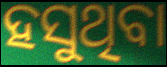
ହସୁଥିବା